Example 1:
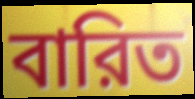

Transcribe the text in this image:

বারিত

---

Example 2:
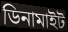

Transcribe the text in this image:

ডিনামাইট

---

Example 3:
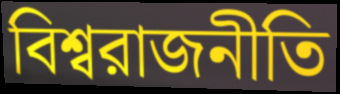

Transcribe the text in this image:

বিশ্বরাজনীতি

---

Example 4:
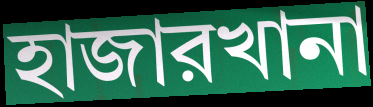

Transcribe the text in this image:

হাজারখানা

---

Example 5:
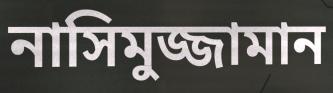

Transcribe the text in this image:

নাসিমুজ্জামান